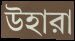
উহারা